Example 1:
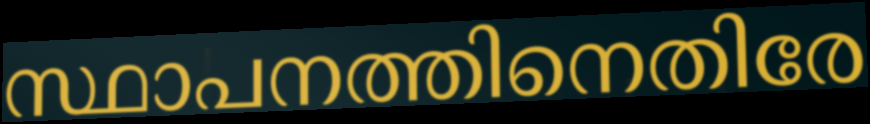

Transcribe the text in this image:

സ്ഥാപനത്തിനെതിരേ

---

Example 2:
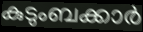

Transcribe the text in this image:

കുടുംബക്കാർ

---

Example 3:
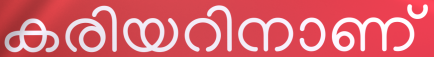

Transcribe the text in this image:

കരിയറിനാണ്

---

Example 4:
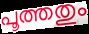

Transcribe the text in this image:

പൂത്തതും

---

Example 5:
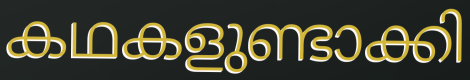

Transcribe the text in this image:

കഥകളുണ്ടാക്കി